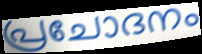
പ്രചോദനം